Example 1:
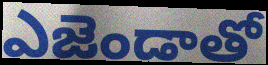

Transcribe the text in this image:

ఎజెండాతో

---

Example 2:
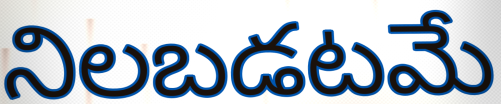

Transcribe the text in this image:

నిలబడటమే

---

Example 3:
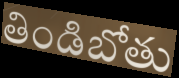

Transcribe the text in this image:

తిండిబోతు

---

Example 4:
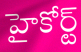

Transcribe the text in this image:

హైకోర్ట్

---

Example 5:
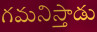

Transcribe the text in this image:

గమనిస్తాడు